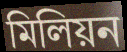
মিলিয়ন